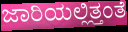
ಜಾರಿಯಲ್ಲಿತ್ತಂತೆ